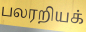
பலரறியக்